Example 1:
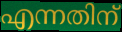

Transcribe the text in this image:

എന്നതിന്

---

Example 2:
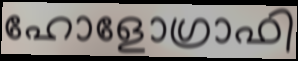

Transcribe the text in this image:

ഹോളോഗ്രാഫി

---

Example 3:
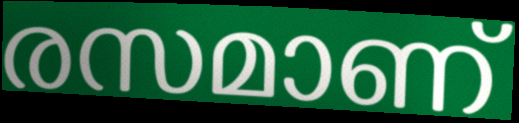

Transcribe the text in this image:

രസമാണ്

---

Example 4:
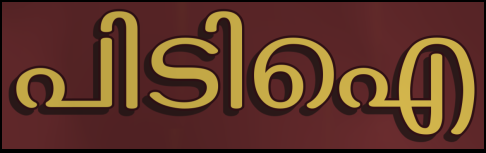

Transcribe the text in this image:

പിടിഐ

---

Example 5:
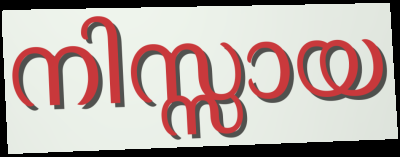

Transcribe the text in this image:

നിസ്സായ